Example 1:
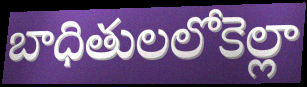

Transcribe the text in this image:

బాధితులలోకెల్లా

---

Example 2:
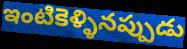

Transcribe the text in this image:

ఇంటికెళ్ళినప్పుడు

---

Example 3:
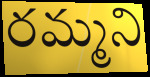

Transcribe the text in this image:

రమ్మని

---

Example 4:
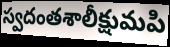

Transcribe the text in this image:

స్వదంతశాలీక్షుమపి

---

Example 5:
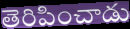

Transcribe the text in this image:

తెరిపించాడు